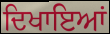
ਦਿਖਾਇਆਂ